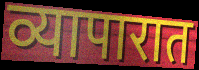
व्यापारात